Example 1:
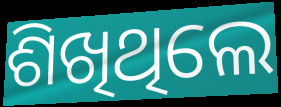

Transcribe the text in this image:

ଶିଖିଥିଲେ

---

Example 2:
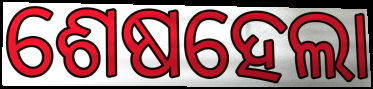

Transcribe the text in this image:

ଶେଷହେଲା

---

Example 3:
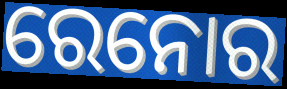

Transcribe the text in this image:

ରେନୋର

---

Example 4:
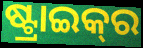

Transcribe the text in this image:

ଷ୍ଟ୍ରାଇକ୍‍ର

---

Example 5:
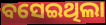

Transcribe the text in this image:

ବସେଇଥିଲା